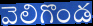
వెలిగొండ